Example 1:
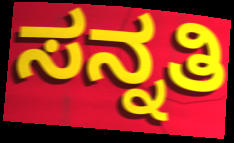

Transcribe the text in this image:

ಸನ್ನತಿ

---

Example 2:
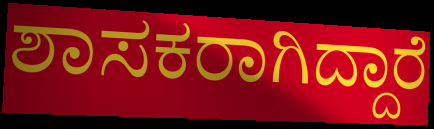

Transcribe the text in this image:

ಶಾಸಕರಾಗಿದ್ದಾರೆ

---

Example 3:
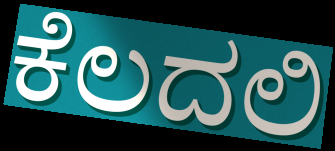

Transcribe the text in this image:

ಕೆಲದಲಿ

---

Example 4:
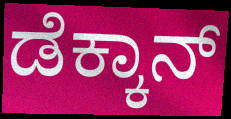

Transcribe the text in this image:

ಡೆಕ್ಕಾನ್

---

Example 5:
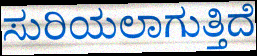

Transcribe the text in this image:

ಸುರಿಯಲಾಗುತ್ತಿದೆ